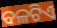
ବଳଟିଏ